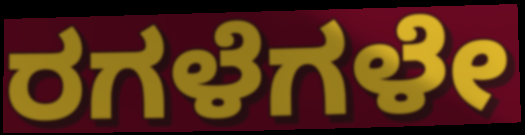
ರಗಳೆಗಳೇ